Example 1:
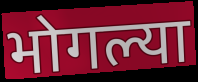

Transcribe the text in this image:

भोगल्या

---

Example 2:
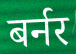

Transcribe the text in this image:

बर्नर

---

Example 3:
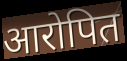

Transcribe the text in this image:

आरोपित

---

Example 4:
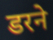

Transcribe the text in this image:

डरने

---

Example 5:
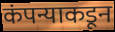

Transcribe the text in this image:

कंपन्याकडून